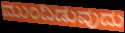
ಮುಂದಿಡುವುದು